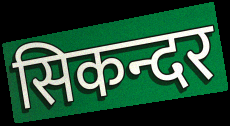
सिकन्दर